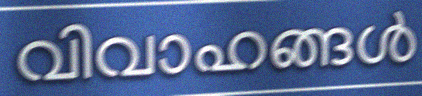
വിവാഹങ്ങൾ